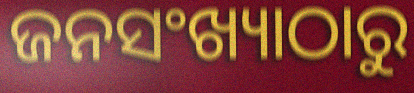
ଜନସଂଖ୍ୟାଠାରୁ